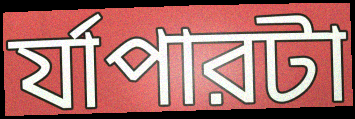
র্যাপারটা